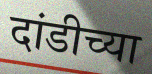
दांडीच्या